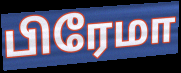
பிரேமா